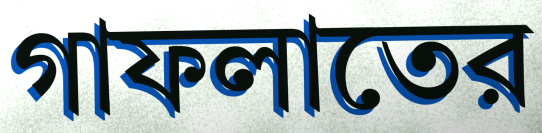
গাফলাতের